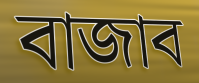
বাজাব